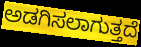
ಅಡಗಿಸಲಾಗುತ್ತದೆ